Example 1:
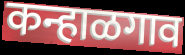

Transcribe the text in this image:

कन्हाळगाव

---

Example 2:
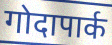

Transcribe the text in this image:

गोदापार्क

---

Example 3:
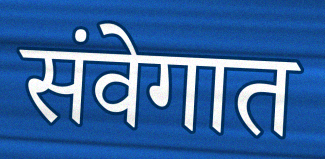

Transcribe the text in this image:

संवेगात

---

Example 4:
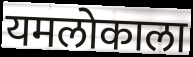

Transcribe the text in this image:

यमलोकाला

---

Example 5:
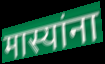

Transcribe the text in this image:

मास्यांना